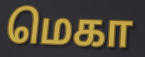
மெகா